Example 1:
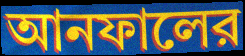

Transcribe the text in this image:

আনফালের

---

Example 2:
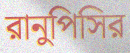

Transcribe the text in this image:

রানুপিসির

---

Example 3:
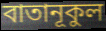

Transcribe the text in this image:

বাতানূকুল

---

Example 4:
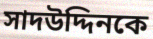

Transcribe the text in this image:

সাদউদ্দিনকে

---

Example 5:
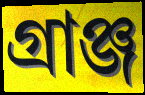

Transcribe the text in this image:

গ্রাঞ্জ